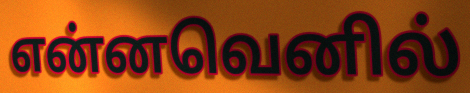
என்னவெனில்